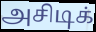
அசிடிக்